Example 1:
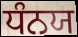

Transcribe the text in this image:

ਧੰਨਯ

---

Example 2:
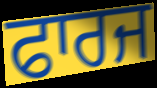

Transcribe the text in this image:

ਫਾਰਜ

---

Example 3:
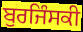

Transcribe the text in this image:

ਬੁਰਜਿੰਸਕੀ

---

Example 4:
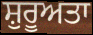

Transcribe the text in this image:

ਸ਼ੁਰੂਅਤਾ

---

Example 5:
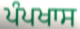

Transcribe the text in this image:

ਪੰਪਖਾਸ